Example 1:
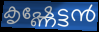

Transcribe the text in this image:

കൃഷ്ണേട്ടൻ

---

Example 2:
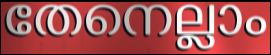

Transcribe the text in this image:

തേനെല്ലാം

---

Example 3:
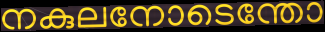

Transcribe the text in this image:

നകുലനോടെന്തോ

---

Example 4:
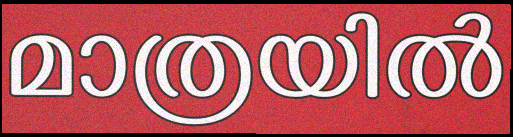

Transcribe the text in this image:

മാത്രയിൽ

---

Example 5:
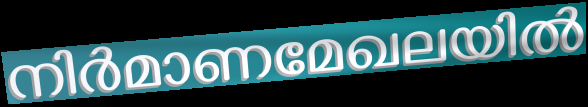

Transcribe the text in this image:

നിർമാണമേഖലയിൽ